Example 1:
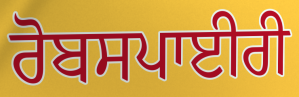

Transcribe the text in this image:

ਰੋਬਸਪਾਈਰੀ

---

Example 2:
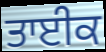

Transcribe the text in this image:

ਤਾਈਕ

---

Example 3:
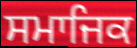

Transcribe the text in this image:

ਸਮਾਜਿਕ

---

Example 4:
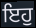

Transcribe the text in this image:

ਇਹੁ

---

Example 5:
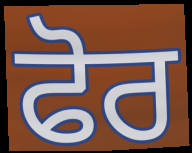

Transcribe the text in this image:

ਫੋਰ